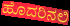
ಹೊದರಿನಲಿ